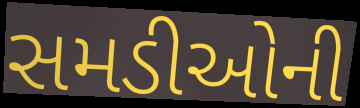
સમડીઓની